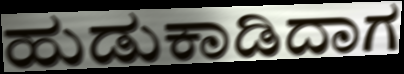
ಹುಡುಕಾಡಿದಾಗ